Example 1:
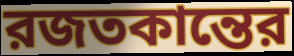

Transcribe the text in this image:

রজতকান্তের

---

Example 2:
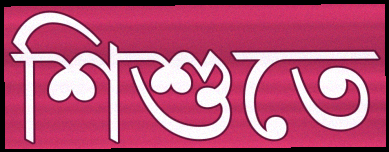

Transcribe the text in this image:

শিশুতে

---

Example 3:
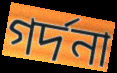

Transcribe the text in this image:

গর্দনা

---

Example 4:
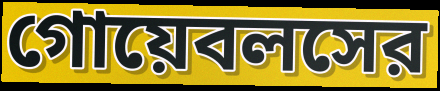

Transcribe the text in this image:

গোয়েবলসের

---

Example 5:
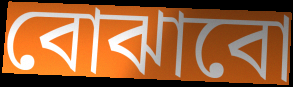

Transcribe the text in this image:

বোঝাবো